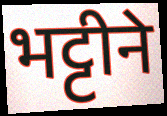
भट्टीने